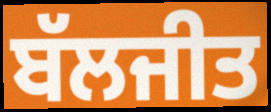
ਬੱਲਜੀਤ